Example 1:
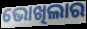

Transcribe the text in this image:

ଭୋଖିଲାର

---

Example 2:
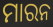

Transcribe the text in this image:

ମାରନ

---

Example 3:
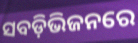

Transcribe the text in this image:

ସବଡ଼ିଭିଜନରେ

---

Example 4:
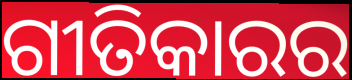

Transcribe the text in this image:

ଗୀତିକାରର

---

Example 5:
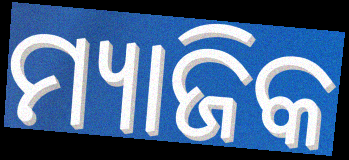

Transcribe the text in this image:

ମ୍ୟାଜିକ